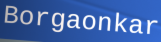
Borgaonkar